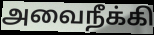
அவைநீக்கி